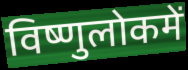
विष्णुलोकमें